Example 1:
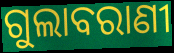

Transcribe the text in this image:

ଗୁଲାବରାଣୀ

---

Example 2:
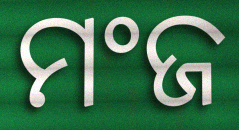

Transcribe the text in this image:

ମଂଜ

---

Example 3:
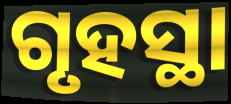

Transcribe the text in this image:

ଗୃହସ୍ଥା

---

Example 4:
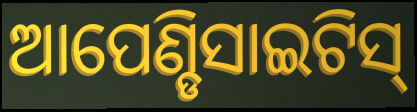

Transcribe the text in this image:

ଆପେଣ୍ଡିସାଇଟିସ୍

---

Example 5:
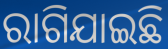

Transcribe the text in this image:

ରାଗିଯାଇଛି